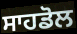
ਸਾਹਡੋਲ